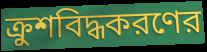
ক্রুশবিদ্ধকরণের